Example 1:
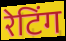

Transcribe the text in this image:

रेटिंग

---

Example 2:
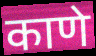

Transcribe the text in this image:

काणे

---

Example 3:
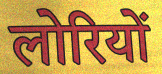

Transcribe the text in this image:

लोरियों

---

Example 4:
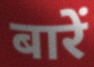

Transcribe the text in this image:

बारें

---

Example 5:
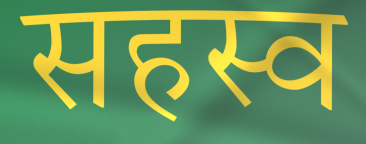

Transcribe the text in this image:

सहस्व